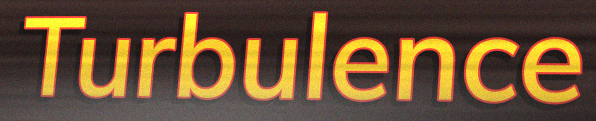
Turbulence